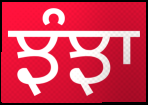
ਝੰਝਾ